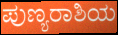
ಪುಣ್ಯರಾಶಿಯ